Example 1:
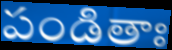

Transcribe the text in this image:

పండితాః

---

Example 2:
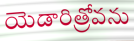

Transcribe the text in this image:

యెడారిత్రోవను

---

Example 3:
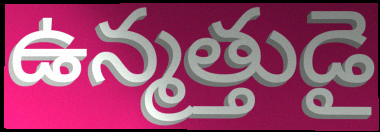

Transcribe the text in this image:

ఉన్మత్తుడై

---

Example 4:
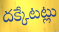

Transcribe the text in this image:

దక్కేటట్లు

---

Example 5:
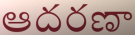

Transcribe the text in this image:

ఆదరణా